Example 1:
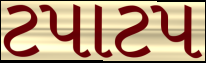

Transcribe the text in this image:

ટપાટપ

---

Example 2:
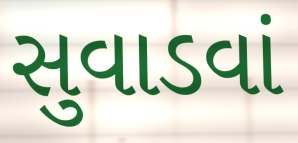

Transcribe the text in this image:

સુવાડવાં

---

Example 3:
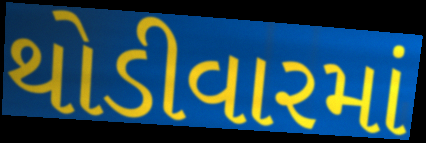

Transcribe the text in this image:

થોડીવારમાં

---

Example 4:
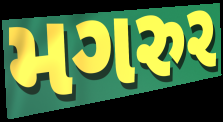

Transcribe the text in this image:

મગરુર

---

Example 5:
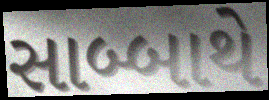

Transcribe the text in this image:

સાબ્બાથે